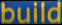
build